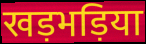
खड़भड़िया